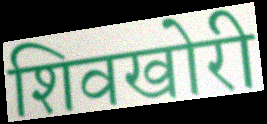
शिवखोरी